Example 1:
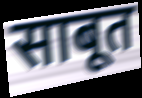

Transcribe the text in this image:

साबूत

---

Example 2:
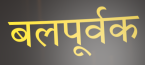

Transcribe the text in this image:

बलपूर्वक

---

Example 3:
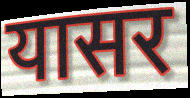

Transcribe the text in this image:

यासर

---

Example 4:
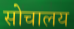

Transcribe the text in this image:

सोचालय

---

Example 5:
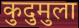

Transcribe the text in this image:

कुदुमुला